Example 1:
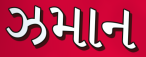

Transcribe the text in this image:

ઝમાન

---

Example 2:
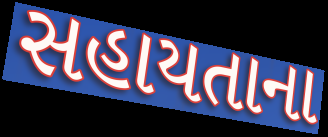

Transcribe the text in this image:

સહાયતાના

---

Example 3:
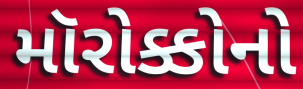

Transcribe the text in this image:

મૉરોક્કોનો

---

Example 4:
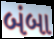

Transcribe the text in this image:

બંબા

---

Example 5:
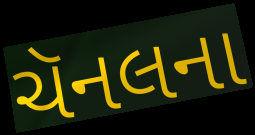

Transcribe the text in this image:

ચૅનલના